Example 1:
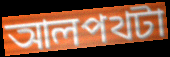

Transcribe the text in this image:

আলপথটা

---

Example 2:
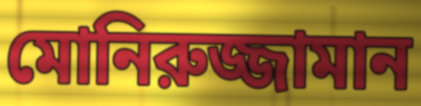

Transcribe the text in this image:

মোনিরুজ্জামান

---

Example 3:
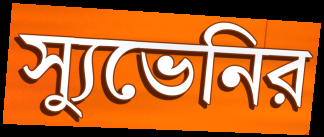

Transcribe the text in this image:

স্যুভেনির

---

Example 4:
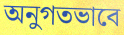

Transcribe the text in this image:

অনুগতভাবে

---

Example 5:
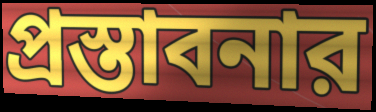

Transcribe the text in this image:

প্রস্তাবনার